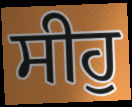
ਸੀਹੁ